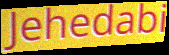
Jehedabi